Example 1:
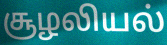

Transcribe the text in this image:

சூழலியல்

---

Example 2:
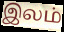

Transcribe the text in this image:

இலம்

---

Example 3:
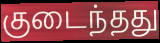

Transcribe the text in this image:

குடைந்தது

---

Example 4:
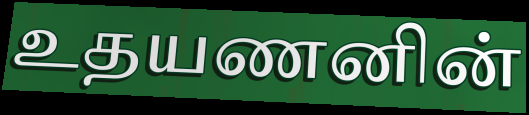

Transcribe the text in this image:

உதயணனின்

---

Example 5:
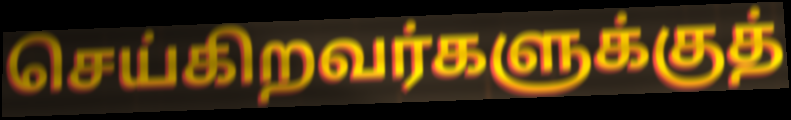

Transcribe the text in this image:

செய்கிறவர்களுக்குத்